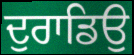
ਦੁਰਾਡਿਉ